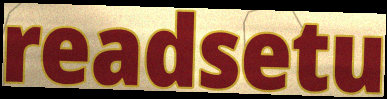
readsetu